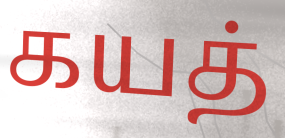
கயத்